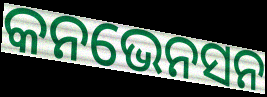
କନଭେନସନ